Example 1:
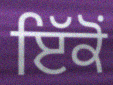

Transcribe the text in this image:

ਇੱਕੋਂ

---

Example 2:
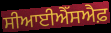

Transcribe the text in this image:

ਸੀਆਈਐੱਸਐਫ਼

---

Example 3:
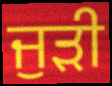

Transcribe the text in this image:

ਜੁੜੀ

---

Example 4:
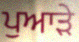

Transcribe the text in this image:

ਪੁਆੜੇ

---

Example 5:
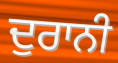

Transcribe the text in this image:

ਦੁਰਾਨੀ